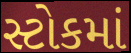
સ્ટોકમાં